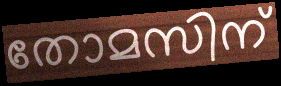
തോമസിന്